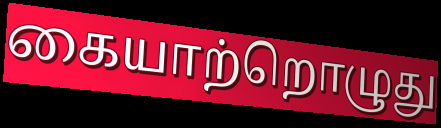
கையாற்றொழுது